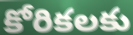
కోరికలకు